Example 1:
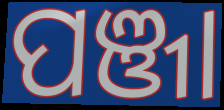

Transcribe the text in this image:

ପଞ୍ଜା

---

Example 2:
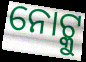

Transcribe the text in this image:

ନୋଟ୍କୁ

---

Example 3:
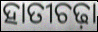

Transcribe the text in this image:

ହାତୀଚଢ଼ା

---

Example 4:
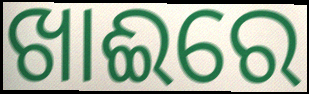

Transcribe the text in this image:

ଖାଈରେ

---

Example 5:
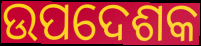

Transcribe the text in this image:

ଉପଦେଶକ